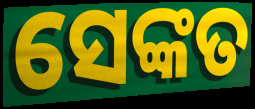
ସେଙ୍କତ